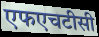
एफएचटीसी